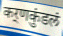
कर्णकुंडलं